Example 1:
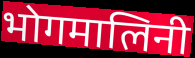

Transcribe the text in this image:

भोगमालिनी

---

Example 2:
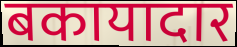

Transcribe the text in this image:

बकायादार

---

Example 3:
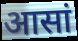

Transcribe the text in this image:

आसां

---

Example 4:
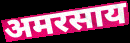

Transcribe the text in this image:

अमरसाय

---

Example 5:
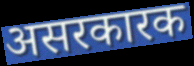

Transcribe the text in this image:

असरकारक